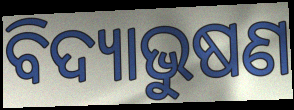
ବିଦ୍ୟାଭୁଷଣ